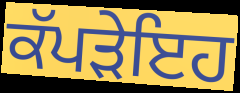
ਕੱਪੜੇਇਹ